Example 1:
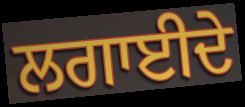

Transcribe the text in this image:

ਲਗਾਈਦੇ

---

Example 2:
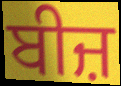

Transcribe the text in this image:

ਬੀਜ਼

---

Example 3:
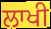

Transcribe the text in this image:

ਲਾਖੀ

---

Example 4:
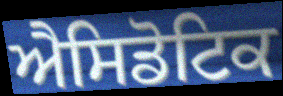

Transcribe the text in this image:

ਐਸਿਡੋਟਿਕ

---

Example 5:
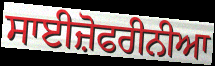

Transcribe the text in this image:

ਸਾਈਜ਼ੋਫਰੀਨੀਆ